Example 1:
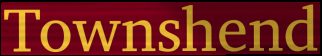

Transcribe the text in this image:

Townshend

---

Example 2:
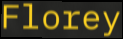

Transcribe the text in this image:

Florey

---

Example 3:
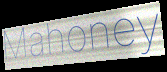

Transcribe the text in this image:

Mahoney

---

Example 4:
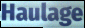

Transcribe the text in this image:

Haulage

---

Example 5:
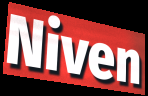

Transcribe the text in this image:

Niven